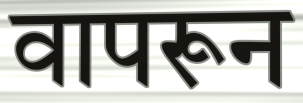
वापरून